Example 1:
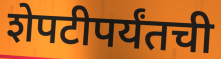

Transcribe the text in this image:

शेपटीपर्यंतची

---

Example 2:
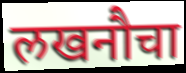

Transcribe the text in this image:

लखनौचा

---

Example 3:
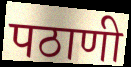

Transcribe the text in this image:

पठाणी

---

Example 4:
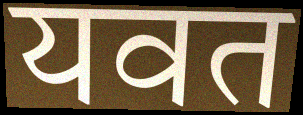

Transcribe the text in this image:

यवत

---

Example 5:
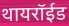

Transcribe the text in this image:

थायरॉईड